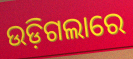
ଉଡ଼ିଗଲାରେ